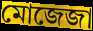
মোজেজা